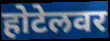
होटेलवर